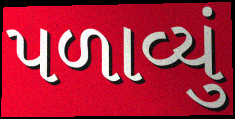
પળાવ્યું